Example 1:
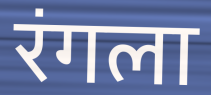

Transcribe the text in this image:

रंगला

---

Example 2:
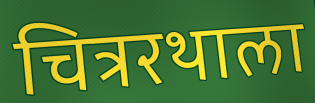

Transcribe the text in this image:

चित्ररथाला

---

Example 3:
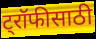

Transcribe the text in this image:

ट्रॉफीसाठी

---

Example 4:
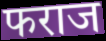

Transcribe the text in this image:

फराज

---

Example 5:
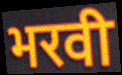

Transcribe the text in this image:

भरवी